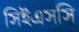
সিইএসসি